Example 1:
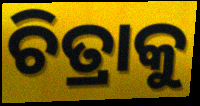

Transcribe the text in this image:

ଚିତ୍ରାକୁ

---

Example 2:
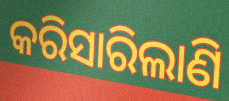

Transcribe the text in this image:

କରିସାରିଲାଣି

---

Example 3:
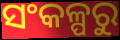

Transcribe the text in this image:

ସଂକଳ୍ପରୁ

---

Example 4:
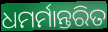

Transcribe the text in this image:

ଧମର୍ମାନ୍ତରିତ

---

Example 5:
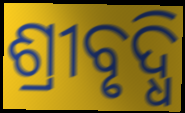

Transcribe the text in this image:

ଶ୍ରୀବୃଦ୍ଧି